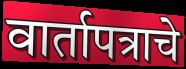
वार्तापत्राचे